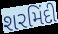
શરમિંદી